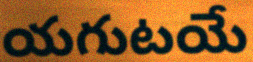
యగుటయే